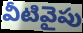
వీటివైపు